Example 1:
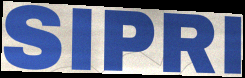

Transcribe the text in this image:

SIPRI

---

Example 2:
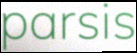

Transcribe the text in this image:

parsis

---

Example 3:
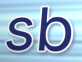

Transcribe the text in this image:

sb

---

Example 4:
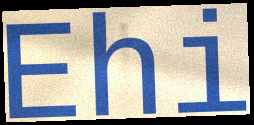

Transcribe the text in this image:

Ehi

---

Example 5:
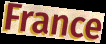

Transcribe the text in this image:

France